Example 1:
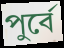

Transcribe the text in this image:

পুর্বে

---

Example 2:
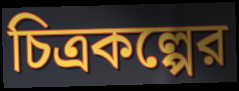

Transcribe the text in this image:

চিত্রকল্পের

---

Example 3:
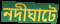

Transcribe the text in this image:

নদীঘাটে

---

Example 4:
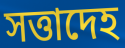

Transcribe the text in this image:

সত্তাদেহ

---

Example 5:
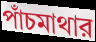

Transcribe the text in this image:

পাঁচমাথার